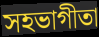
সহভাগীতা